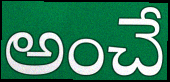
అంచే